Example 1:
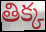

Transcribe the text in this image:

తిక్క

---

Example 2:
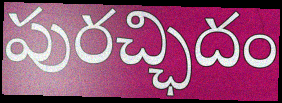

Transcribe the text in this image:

పురచ్ఛిదం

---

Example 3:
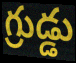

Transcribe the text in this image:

గ్రుడ్డు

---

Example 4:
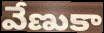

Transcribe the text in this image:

వేణుకా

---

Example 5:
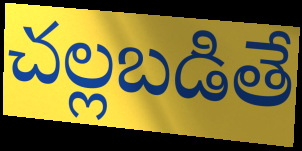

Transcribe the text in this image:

చల్లబడితే